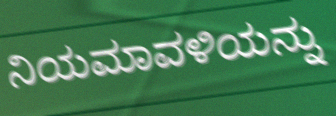
ನಿಯಮಾವಳಿಯನ್ನು